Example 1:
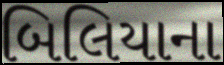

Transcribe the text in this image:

બિલિયાના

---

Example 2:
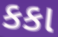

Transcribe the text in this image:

કકા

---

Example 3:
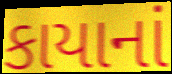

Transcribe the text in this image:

કાયાનાં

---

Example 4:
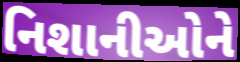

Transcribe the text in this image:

નિશાનીઓને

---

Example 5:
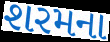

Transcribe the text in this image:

શરમના